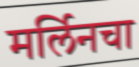
मर्लिनचा